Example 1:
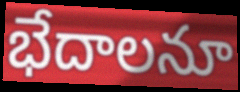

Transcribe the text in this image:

భేదాలనూ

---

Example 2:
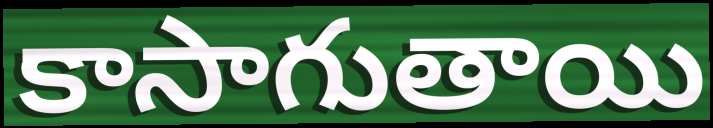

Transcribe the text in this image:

కాసాగుతాయి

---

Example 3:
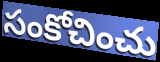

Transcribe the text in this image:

సంకోచించు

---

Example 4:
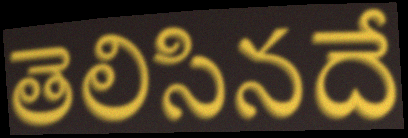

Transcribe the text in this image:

తెలిసినదే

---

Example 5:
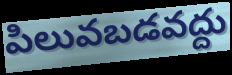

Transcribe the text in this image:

పిలువబడవద్దు